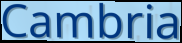
Cambria